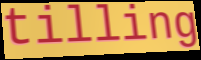
tilling